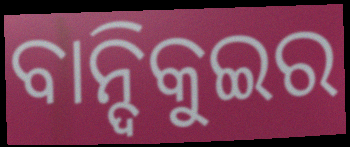
ବାନ୍ଦିକୁଇର